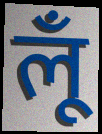
लूँ